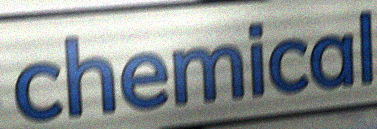
chemical